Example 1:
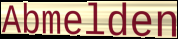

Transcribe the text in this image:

Abmelden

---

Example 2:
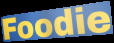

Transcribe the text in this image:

Foodie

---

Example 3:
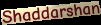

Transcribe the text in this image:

Shaddarshan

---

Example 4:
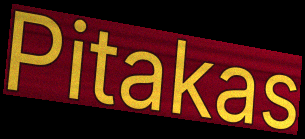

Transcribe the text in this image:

Pitakas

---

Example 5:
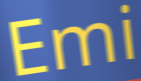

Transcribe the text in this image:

Emi